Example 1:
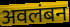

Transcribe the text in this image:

अवलंबन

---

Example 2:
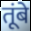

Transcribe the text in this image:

तूंबे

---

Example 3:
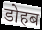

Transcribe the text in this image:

डोहब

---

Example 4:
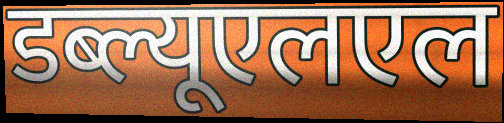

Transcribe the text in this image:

डब्ल्यूएलएल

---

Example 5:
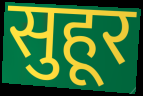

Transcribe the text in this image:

सुहूर